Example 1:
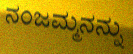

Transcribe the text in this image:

ನಂಜಮ್ಮನನ್ನು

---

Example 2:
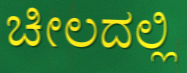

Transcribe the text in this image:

ಚೀಲದಲ್ಲಿ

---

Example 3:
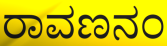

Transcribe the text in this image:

ರಾವಣನಂ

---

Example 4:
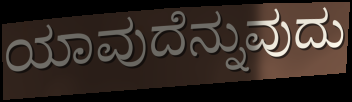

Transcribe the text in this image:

ಯಾವುದೆನ್ನುವುದು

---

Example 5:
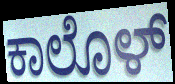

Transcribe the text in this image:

ಕಾಲೊಳ್